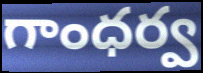
గాంధర్వ